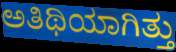
ಅತಿಥಿಯಾಗಿತ್ತು